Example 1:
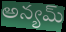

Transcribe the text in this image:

అన్యమ్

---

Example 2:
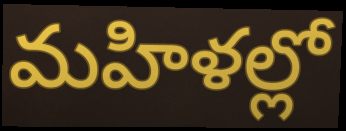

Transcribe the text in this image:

మహిళల్లో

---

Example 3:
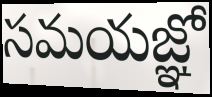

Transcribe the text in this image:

సమయజ్ఞో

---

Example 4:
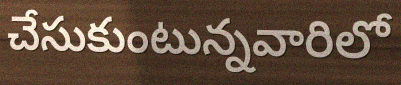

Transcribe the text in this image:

చేసుకుంటున్నవారిలో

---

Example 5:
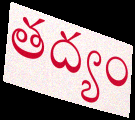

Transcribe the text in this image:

తద్యం